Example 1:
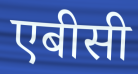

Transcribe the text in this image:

एबीसी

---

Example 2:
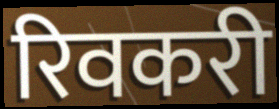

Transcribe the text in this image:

रिवकरी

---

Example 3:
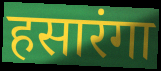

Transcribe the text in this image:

हसारंगा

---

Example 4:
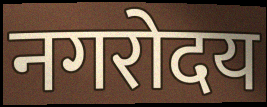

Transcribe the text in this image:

नगरोदय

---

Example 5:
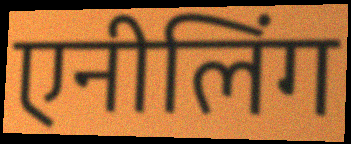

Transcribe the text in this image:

एनीलिंग